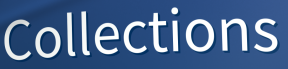
Collections